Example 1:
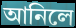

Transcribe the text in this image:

আনিলে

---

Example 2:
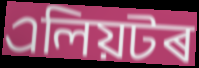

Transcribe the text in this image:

এলিয়টৰ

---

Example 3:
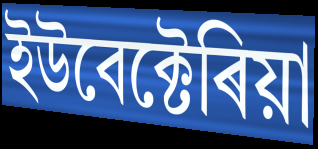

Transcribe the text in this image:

ইউবেক্টেৰিয়া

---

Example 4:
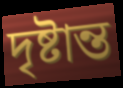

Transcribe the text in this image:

দৃষ্টান্ত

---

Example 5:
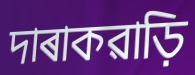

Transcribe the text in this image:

দাৰাকৱাড়ি